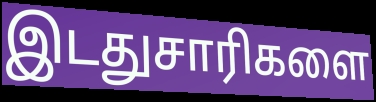
இடதுசாரிகளை